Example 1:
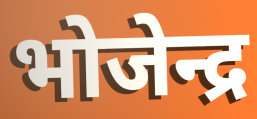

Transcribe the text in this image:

भोजेन्द्र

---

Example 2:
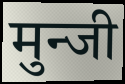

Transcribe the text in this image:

मुन्जी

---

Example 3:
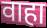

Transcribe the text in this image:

वाहा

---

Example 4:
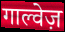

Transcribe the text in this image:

गाल्वेज़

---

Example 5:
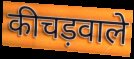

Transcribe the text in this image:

कीचड़वाले